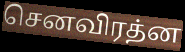
செனவிரத்ன